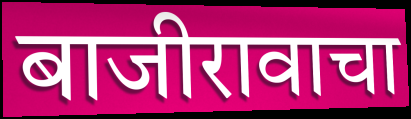
बाजीरावाचा